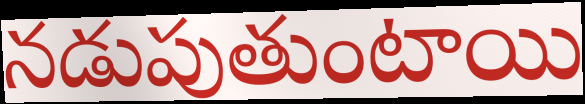
నడుపుతుంటాయి